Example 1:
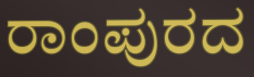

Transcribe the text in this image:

ರಾಂಪುರದ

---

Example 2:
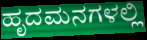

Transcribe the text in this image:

ಹೃದಮನಗಳಲ್ಲಿ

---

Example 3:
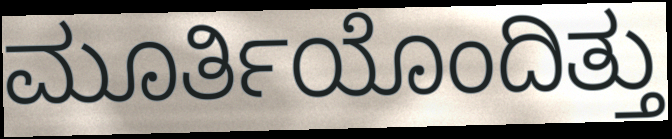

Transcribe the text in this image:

ಮೂರ್ತಿಯೊಂದಿತ್ತು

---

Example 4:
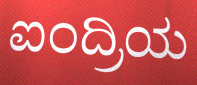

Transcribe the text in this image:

ಐಂದ್ರಿಯ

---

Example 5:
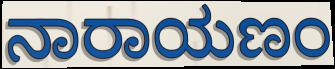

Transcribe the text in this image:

ನಾರಾಯಣಂ